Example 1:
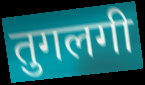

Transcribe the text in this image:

तुगलगी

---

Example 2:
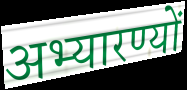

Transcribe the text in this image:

अभ्यारण्यों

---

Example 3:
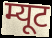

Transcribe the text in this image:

म्यूट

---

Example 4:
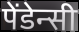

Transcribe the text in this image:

पेंडेन्सी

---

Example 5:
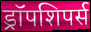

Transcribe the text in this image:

ड्रॉपशिपर्स